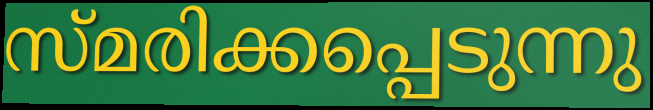
സ്മരിക്കപ്പെടുന്നു